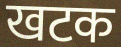
खटक